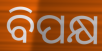
ବିପକ୍ଷ